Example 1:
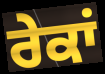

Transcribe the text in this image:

ਰੇਕਾਂ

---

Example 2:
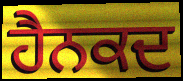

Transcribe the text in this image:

ਹੈਨਕਦ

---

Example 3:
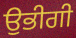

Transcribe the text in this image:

ਉਭੀਗੀ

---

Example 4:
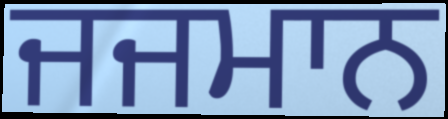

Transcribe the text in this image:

ਜਜਮਾਨ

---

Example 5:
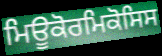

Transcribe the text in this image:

ਮਿਊਕੋਰਮਿਕੋਸਿਸ